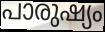
പാരുഷ്യം